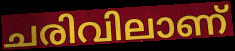
ചരിവിലാണ്